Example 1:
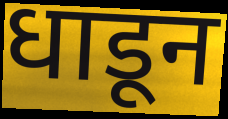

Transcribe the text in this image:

धाडून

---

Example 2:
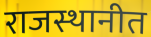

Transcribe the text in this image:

राजस्थानीत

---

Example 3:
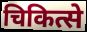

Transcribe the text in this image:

चिकित्से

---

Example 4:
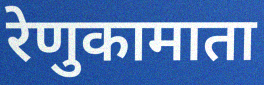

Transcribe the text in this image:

रेणुकामाता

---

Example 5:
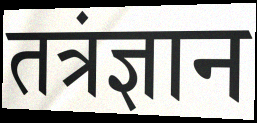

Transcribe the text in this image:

तत्रंज्ञान